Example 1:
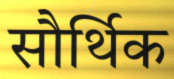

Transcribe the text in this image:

सौर्थिक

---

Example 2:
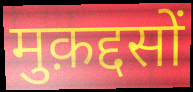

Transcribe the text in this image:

मुक़द्दसों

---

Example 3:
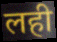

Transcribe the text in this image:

लही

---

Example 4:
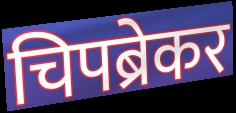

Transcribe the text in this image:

चिपब्रेकर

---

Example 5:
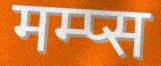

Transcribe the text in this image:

मम्प्स